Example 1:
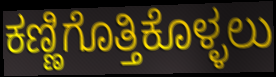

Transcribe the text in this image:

ಕಣ್ಣಿಗೊತ್ತಿಕೊಳ್ಳಲು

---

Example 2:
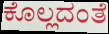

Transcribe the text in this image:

ಕೊಲ್ಲದಂತೆ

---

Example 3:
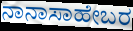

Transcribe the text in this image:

ನಾನಾಸಾಹೇಬರ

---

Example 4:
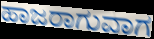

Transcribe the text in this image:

ಹಾಜರಾಗುವಾಗ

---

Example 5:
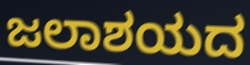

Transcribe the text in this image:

ಜಲಾಶಯದ